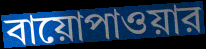
বায়োপাওয়ার